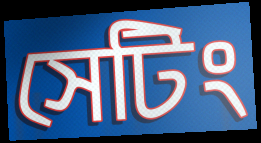
সেটিং